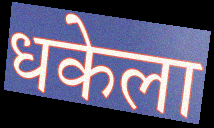
धकेला